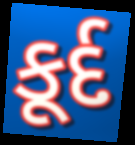
કૂર્દ